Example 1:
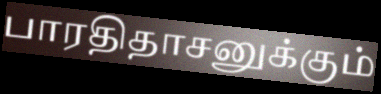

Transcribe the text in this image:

பாரதிதாசனுக்கும்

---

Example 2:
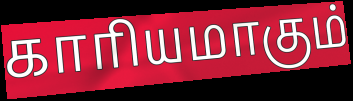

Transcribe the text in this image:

காரியமாகும்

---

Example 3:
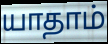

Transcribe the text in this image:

யாதாம்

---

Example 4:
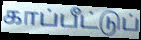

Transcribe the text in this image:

காப்பீட்டுப்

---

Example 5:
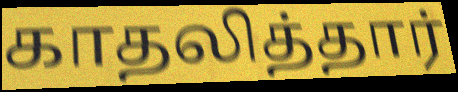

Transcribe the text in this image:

காதலித்தார்